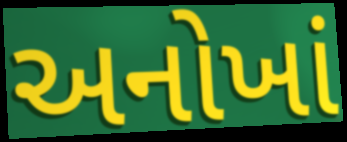
અનોખાં